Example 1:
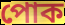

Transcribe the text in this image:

পোক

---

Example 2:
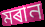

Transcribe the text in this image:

মৰান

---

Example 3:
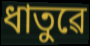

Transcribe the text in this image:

ধাতুৱে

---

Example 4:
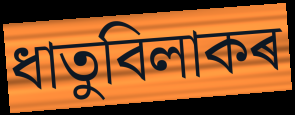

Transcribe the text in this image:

ধাতুবিলাকৰ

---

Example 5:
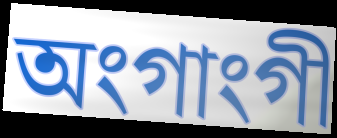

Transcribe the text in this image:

অংগাংগী